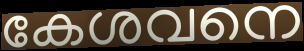
കേശവനെ